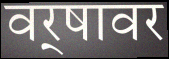
वर्षावर